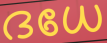
ദധേ